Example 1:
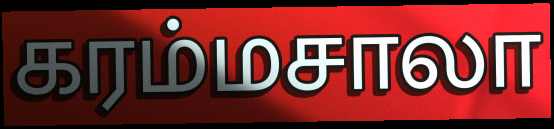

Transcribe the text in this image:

கரம்மசாலா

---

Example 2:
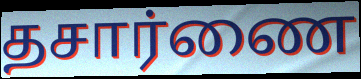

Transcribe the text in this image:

தசார்ணை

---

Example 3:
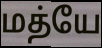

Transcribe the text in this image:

மத்யே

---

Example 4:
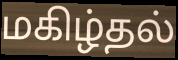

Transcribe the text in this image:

மகிழ்தல்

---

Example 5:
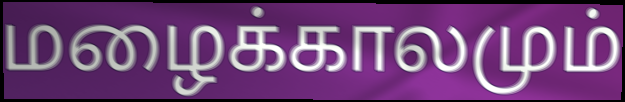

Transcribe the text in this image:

மழைக்காலமும்